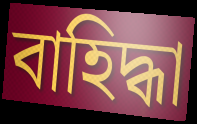
বাহিদ্ধা